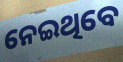
ନେଇଥିବେ